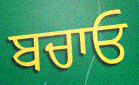
ਬਚਾਓ